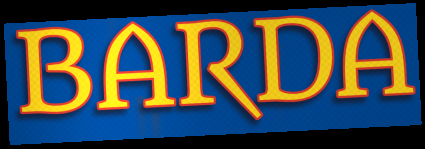
BARDA